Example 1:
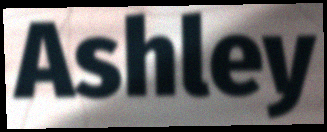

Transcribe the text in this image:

Ashley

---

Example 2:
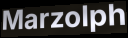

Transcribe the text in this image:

Marzolph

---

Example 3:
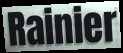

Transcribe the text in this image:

Rainier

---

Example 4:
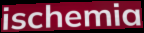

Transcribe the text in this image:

ischemia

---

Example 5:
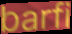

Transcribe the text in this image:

barfi